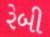
રેબી